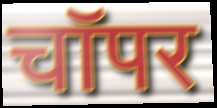
चॉपर